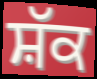
ਸ਼ੱਕ